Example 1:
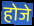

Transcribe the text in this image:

होजे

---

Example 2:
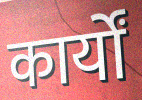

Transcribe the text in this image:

कार्यों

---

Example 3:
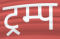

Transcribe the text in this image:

ट्रम्प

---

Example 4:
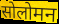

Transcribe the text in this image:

सोलोमन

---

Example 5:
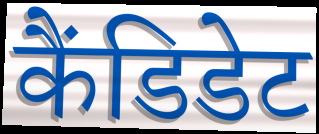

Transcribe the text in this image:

कैंडिडेट